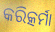
କରିତ୍କର୍ମା